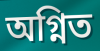
অগ্নিত